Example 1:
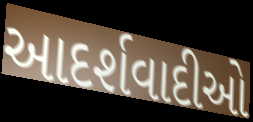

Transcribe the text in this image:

આદર્શવાદીઓ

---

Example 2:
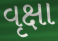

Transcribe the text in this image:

વૃક્ષા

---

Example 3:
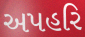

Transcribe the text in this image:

અપહરિ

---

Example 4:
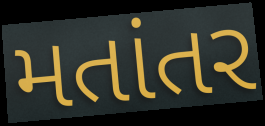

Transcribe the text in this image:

મતાંતર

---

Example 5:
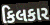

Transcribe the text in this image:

કિલકાર